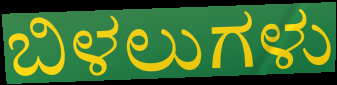
ಬಿಳಲುಗಳು